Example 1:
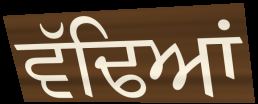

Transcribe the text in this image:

ਵੱਢਿਆਂ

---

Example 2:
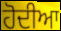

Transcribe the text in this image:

ਹੋਦੀਆ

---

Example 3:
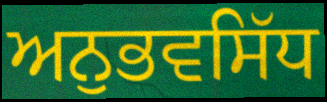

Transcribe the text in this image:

ਅਨੁਭਵਸਿੱਧ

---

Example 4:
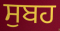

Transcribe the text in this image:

ਸੁਬਹ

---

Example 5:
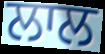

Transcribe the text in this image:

ਲਾਲ